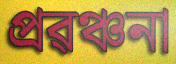
প্ৰৱঞ্চনা